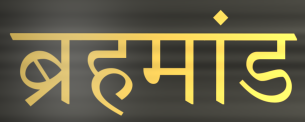
ब्रहमांड